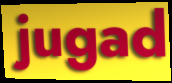
jugad